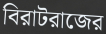
বিরাটরাজের